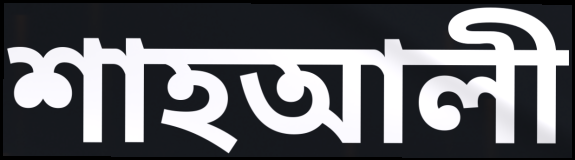
শাহআলী